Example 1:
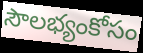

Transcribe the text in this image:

సౌలభ్యంకోసం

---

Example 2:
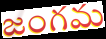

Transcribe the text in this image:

జంగమ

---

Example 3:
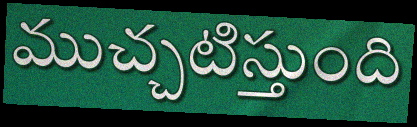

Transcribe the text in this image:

ముచ్చటిస్తుంది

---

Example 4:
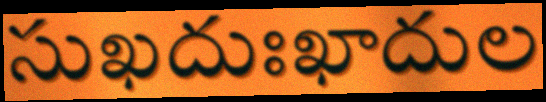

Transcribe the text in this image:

సుఖదుఃఖాదుల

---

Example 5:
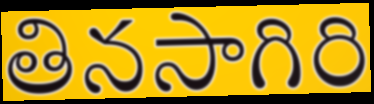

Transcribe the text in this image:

తినసాగిరి